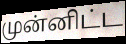
முன்னிட்ட